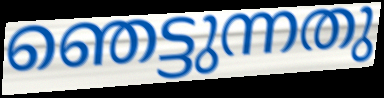
ഞെട്ടുന്നതു